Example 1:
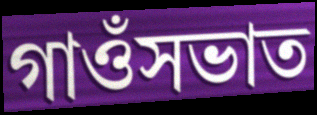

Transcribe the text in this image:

গাওঁসভাত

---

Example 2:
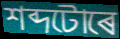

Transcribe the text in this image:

শব্দটোৰে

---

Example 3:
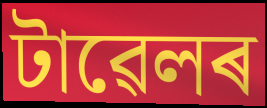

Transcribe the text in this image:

টাৱেলৰ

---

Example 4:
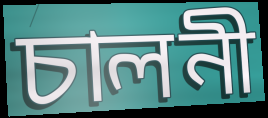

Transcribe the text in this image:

চালনী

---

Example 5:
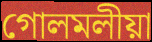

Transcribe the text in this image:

গোলমলীয়া